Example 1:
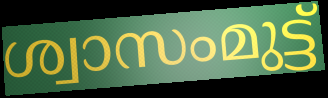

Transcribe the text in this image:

ശ്വാസംമുട്ട്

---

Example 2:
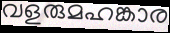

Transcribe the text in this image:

വളരുമഹങ്കാര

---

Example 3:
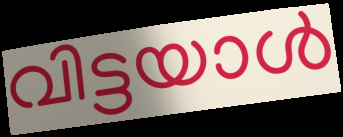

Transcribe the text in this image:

വിട്ടയാൾ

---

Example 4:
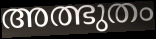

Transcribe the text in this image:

അത്ഭുതം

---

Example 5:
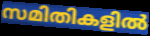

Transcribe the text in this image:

സമിതികളിൽ